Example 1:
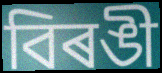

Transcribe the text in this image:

বিৰঙী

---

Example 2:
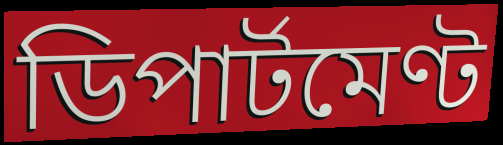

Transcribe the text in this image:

ডিপাৰ্টমেণ্ট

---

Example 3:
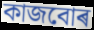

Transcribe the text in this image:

কাজবোৰ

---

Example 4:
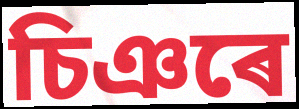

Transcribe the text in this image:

চিঞৰে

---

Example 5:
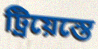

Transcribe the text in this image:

ট্ৰিয়েস্তে